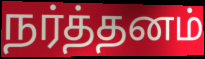
நர்த்தனம்